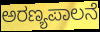
ಅರಣ್ಯಪಾಲನೆ